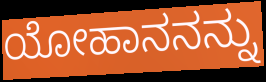
ಯೋಹಾನನನ್ನು